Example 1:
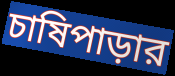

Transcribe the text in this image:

চাষিপাড়ার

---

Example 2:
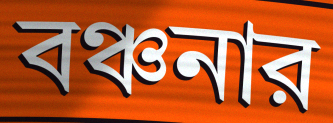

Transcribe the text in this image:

বঞ্চনার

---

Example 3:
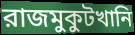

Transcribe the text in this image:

রাজমুকুটখানি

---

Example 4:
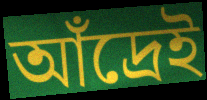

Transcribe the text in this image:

আঁদ্রেই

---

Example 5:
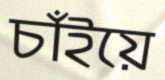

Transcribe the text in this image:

চাঁইয়ে